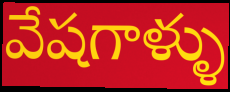
వేషగాళ్ళు